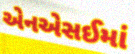
એનએસઈમાં